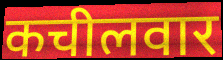
कचीलवार